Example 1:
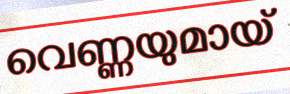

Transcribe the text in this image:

വെണ്ണയുമായ്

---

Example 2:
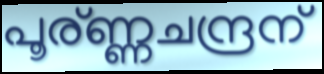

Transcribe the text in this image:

പൂര്ണ്ണചന്ദ്രന്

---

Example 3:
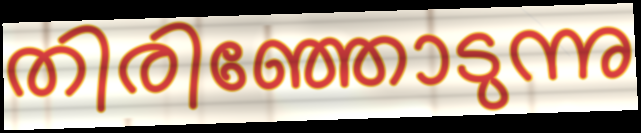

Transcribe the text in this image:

തിരിഞ്ഞോടുന്നു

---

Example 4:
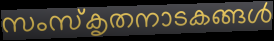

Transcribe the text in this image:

സംസ്കൃതനാടകങ്ങൾ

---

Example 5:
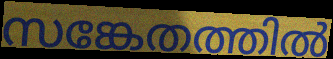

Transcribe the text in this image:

സങ്കേതത്തിൽ